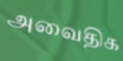
அவைதிக